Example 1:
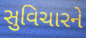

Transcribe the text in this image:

સુવિચારને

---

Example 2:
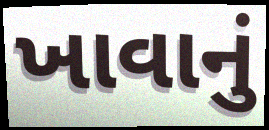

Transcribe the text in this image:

ખાવાનું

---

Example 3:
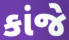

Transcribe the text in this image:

કાંજે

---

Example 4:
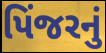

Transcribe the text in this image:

પિંજરનું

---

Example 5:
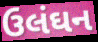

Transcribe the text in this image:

ઉલંઘન